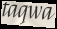
taqwa